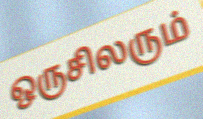
ஒருசிலரும்